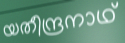
യതീന്ദ്രനാഥ്